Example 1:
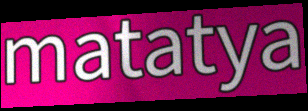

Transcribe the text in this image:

matatya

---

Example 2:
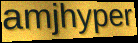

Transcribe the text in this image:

amjhyper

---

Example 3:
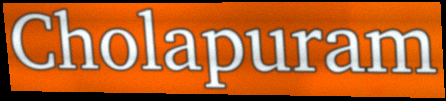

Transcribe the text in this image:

Cholapuram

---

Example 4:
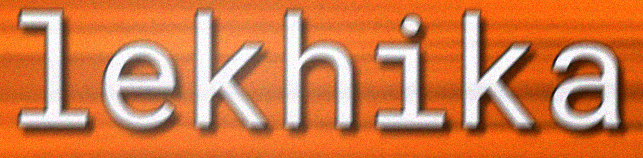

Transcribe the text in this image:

lekhika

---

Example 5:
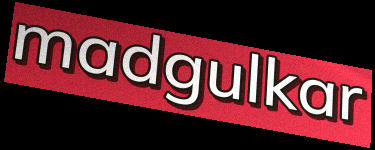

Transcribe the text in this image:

madgulkar